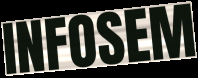
INFOSEM